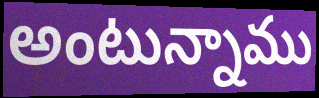
అంటున్నాము